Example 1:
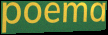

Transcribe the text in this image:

poema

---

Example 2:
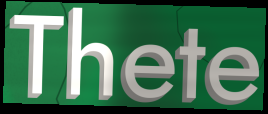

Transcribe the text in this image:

Thete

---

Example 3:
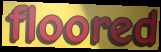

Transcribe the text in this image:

floored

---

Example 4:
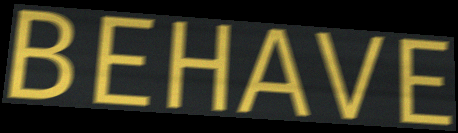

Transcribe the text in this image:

BEHAVE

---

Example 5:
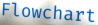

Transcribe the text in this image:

Flowchart